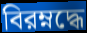
বিরম্নদ্ধে